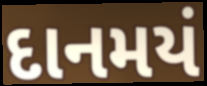
દાનમયં